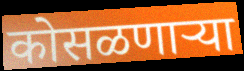
कोसळणाऱ्या